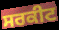
ਸਰਕੀਟ